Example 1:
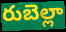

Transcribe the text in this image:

రుబెల్లా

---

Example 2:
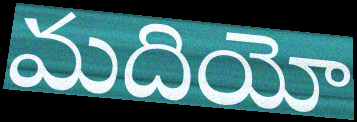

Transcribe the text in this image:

మదియో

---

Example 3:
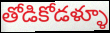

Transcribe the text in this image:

తోడికోడళ్ళూ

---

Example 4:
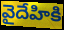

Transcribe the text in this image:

వైదేహికి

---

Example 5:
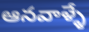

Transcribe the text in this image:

ఆనవాళ్ళే